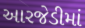
આરજેડીમાં